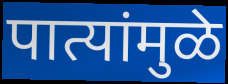
पात्यांमुळे